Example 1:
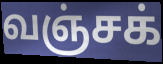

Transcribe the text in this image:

வஞ்சக்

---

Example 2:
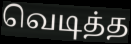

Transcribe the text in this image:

வெடித்த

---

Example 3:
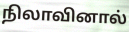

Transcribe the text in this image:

நிலாவினால்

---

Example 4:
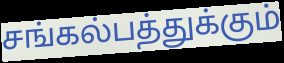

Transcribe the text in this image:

சங்கல்பத்துக்கும்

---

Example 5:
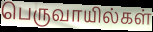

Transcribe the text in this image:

பெருவாயில்கள்